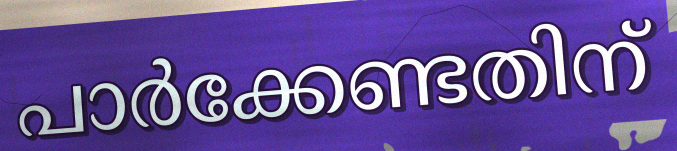
പാർക്കേണ്ടതിന്